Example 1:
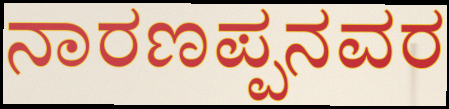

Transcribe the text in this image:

ನಾರಣಪ್ಪನವರ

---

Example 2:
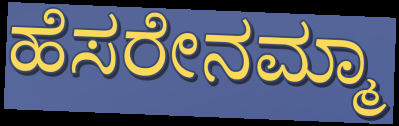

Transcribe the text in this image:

ಹೆಸರೇನಮ್ಮಾ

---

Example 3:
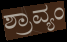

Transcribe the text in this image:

ಶ್ರಾವ್ಯಂ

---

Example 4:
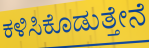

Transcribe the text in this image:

ಕಳಿಸಿಕೊಡುತ್ತೇನೆ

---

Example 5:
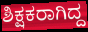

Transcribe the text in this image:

ಶಿಕ್ಷಕರಾಗಿದ್ದ